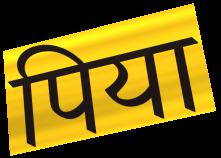
पिया